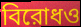
বিরোধও